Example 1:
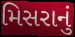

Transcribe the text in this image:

મિસરાનું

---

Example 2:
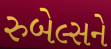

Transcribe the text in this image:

રુબેલ્સને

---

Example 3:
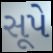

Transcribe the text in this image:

સૂપે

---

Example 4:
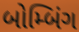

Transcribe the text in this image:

બોમ્બિંગ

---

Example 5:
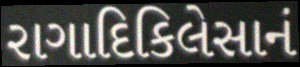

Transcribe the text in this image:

રાગાદિકિલેસાનં